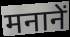
मनानें